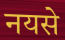
नयसे